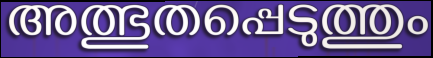
അത്ഭുതപ്പെടുത്തും